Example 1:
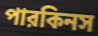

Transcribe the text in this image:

পারকিনস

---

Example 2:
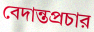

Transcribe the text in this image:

বেদান্তপ্রচার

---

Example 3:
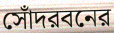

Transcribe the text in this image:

সোঁদরবনের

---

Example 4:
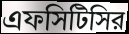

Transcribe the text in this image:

এফসিটিসির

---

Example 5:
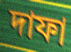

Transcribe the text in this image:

দাফা